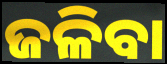
ଜଳିବା